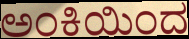
ಅಂಕಿಯಿಂದ